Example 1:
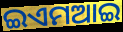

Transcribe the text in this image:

ଇଏମଆଇ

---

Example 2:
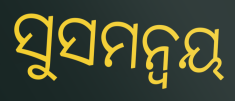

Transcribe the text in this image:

ସୁସମନ୍ୱୟ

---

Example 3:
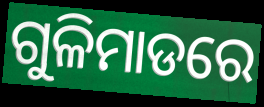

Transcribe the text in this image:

ଗୁଳିମାଡରେ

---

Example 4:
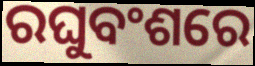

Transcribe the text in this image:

ରଘୁବଂଶରେ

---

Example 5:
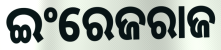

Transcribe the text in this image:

ଇଂରେଜରାଜ